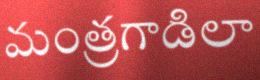
మంత్రగాడిలా